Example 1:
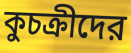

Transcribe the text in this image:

কুচক্রীদের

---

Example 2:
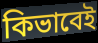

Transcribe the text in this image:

কিভাবেই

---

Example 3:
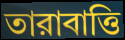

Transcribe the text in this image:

তারাবাত্তি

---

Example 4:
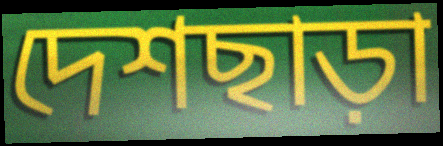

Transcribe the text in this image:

দেশছাড়া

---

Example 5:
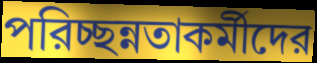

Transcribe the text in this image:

পরিচ্ছন্নতাকর্মীদের